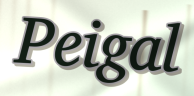
Peigal